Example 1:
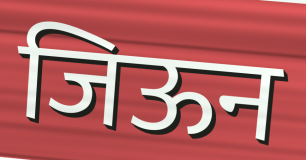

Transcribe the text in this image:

जिऊन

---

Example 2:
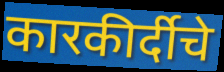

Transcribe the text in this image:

कारकीर्दीचे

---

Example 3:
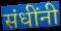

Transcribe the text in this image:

संधींनी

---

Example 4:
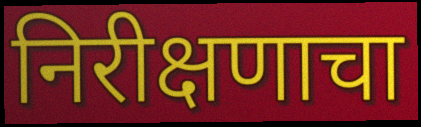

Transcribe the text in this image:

निरीक्षणाचा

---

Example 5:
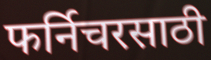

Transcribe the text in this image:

फर्निचरसाठी